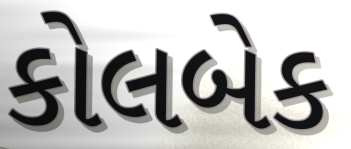
કોલબેક